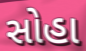
સોહા